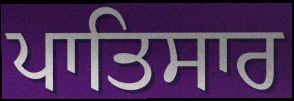
ਪਾਤਿਸਾਰ